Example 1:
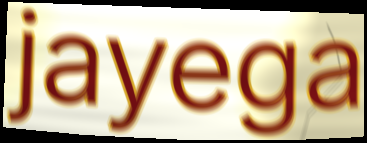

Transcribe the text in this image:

jayega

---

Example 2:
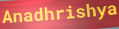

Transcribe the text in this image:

Anadhrishya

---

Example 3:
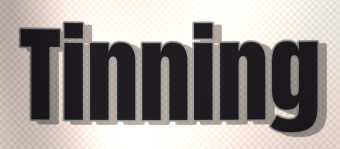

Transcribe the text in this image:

Tinning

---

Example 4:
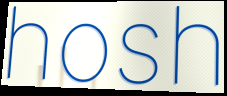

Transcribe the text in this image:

hosh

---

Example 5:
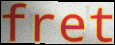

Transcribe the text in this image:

fret